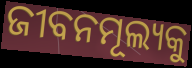
ଜୀବନମୂଲ୍ୟକୁ